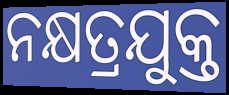
ନକ୍ଷତ୍ରଯୁକ୍ତ